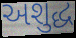
અશુદ્ધ